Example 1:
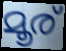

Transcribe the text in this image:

മൂര്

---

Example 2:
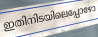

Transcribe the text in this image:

ഇതിനിടയിലെപ്പോഴോ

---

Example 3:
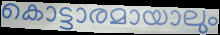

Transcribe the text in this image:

കൊട്ടാരമായാലും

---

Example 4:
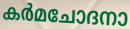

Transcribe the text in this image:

കർമചോദനാ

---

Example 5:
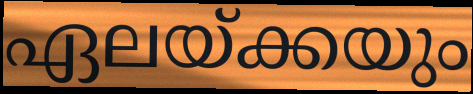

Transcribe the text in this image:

ഏലയ്ക്കയും